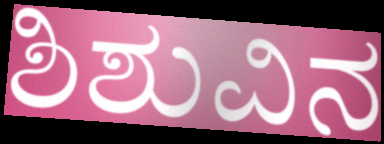
ಶಿಶುವಿನ